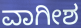
ವಾಗೀಶ